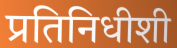
प्रतिनिधीशी